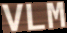
VLM